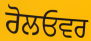
ਰੋਲਓਵਰ